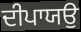
ਦੀਪਾਯਉ